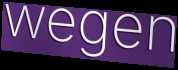
wegen